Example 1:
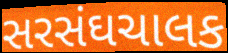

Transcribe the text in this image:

સરસંઘચાલક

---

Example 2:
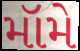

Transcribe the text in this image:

મૉમે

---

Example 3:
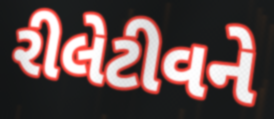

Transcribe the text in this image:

રીલેટીવને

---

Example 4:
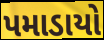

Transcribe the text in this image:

પમાડાયો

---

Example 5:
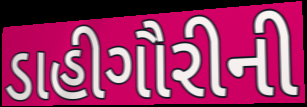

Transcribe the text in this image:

ડાહીગૌરીની